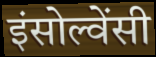
इंसोल्वेंसी